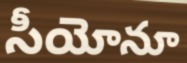
సీయోనూ